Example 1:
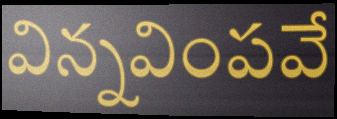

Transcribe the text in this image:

విన్నవింపవే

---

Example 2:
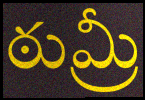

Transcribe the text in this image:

ఠుమ్రీ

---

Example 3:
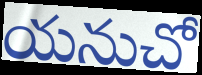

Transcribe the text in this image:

యనుచో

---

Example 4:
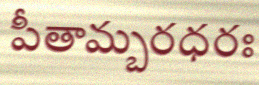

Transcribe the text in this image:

పీతామ్బరధరః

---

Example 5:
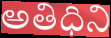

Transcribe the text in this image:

అతిధిని